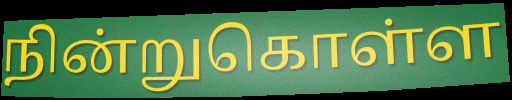
நின்றுகொள்ள